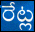
రేట్ల